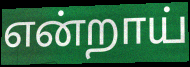
என்றாய்